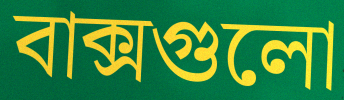
বাক্সগুলো